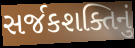
સર્જકશક્તિનું